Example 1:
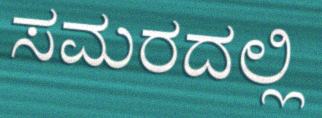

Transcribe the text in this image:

ಸಮರದಲ್ಲಿ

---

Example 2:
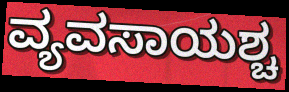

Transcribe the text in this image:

ವ್ಯವಸಾಯಶ್ಚ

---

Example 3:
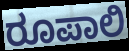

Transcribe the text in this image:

ರೂಪಾಲಿ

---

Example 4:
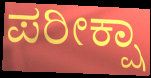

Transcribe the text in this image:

ಪರೀಕ್ಷಾ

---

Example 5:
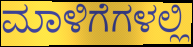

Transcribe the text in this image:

ಮಾಳಿಗೆಗಳಲ್ಲಿ